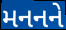
મનનને